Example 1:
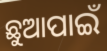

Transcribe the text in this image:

ଛୁଆପାଇଁ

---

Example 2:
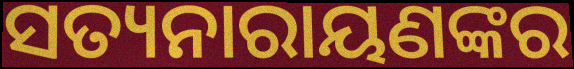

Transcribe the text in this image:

ସତ୍ୟନାରାୟଣଙ୍କର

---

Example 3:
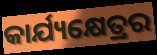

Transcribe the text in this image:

କାର୍ଯ୍ୟକ୍ଷେତ୍ରର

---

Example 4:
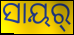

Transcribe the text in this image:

ସାୟର୍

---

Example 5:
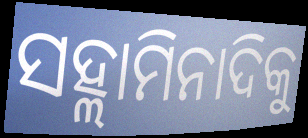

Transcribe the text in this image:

ସହ୍ଲାମିନାଦିକୁ